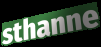
sthanne